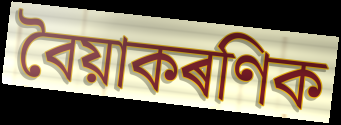
বৈয়াকৰণিক